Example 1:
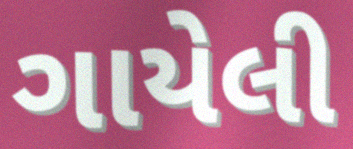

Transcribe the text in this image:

ગાયેલી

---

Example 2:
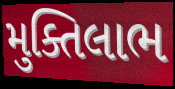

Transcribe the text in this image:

મુક્તિલાભ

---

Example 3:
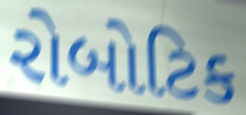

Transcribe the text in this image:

રોબોટિક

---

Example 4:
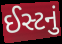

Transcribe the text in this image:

ઈસ્ટનું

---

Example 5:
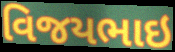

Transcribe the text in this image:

વિજયભાઇ